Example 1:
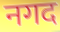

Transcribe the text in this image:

नगद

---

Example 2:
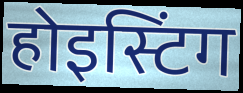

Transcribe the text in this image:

होइस्टिंग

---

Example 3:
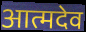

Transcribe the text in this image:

आत्मदेव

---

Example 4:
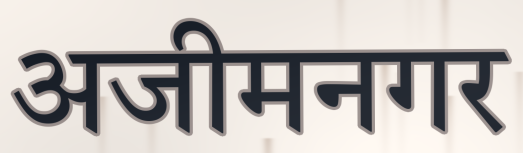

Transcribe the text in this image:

अजीमनगर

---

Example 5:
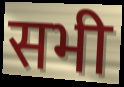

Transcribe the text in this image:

सभी